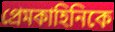
প্রেমকাহিনিকে